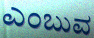
ಎಂಬುವ